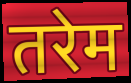
तरेम